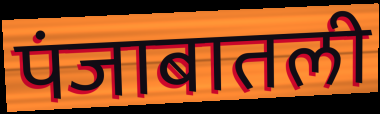
पंजाबातली